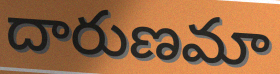
దారుణమా